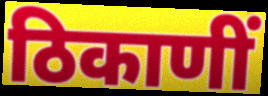
ठिकाणीं